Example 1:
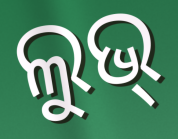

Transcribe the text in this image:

ଲୁଭ୍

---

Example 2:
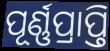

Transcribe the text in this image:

ପୂର୍ଣ୍ଣପ୍ରାପ୍ତି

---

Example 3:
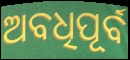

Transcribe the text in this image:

ଅବଧିପୂର୍ବ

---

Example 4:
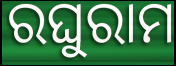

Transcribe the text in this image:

ରଘୁରାମ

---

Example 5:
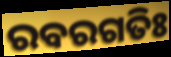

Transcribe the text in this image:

ରବରଗତିଃ